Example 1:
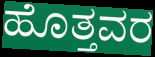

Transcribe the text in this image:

ಹೊತ್ತವರ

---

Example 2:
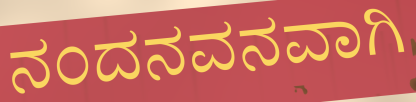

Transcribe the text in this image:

ನಂದನವನವಾಗಿ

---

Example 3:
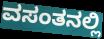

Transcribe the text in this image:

ವಸಂತನಲ್ಲಿ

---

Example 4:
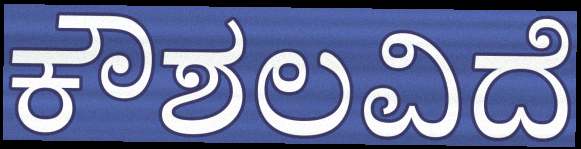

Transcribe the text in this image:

ಕೌಶಲವಿದೆ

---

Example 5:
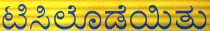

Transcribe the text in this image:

ಟಿಸಿಲೊಡೆಯಿತು